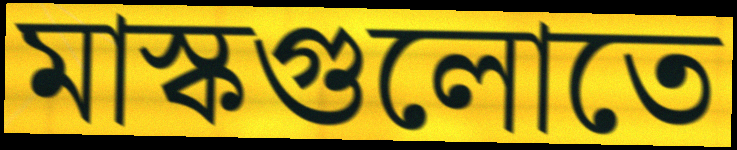
মাস্কগুলোতে